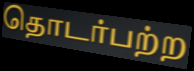
தொடர்பற்ற